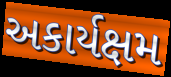
અકાર્યક્ષમ